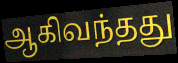
ஆகிவந்தது